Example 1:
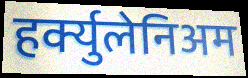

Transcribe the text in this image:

हर्क्युलेनिअम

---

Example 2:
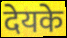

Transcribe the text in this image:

देयके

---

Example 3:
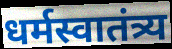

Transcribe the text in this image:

धर्मस्वातंत्र्य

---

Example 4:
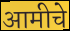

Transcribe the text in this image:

आमीचे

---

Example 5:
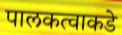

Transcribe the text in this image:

पालकत्वाकडे